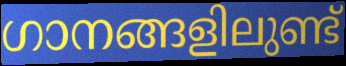
ഗാനങ്ങളിലുണ്ട്